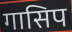
गासिप